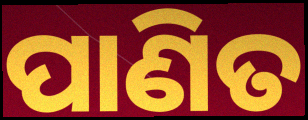
ପାଣିତ